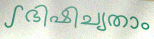
ഽഭിഷിച്യതാം